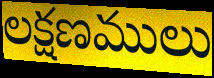
లక్షణములు